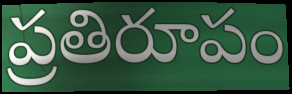
ప్రతిరూపం